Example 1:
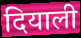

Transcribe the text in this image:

दियाली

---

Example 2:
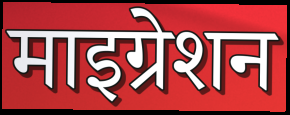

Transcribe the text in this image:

माइग्रेशन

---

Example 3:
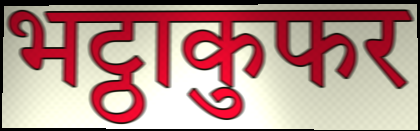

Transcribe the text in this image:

भट्ठाकुफर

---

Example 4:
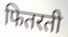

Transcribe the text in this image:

फितरती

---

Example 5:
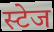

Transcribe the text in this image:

स्‍टेज